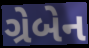
ગ્રેબેન